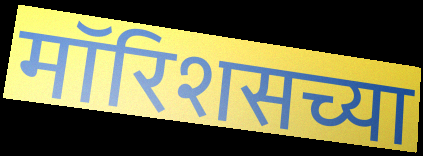
मॉरिशसच्या